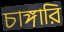
চাঙ্গারি